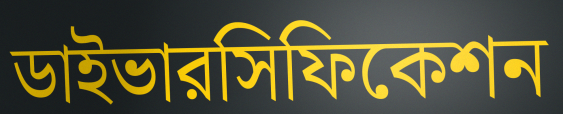
ডাইভারসিফিকেশন